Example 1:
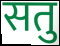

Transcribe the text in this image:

सतु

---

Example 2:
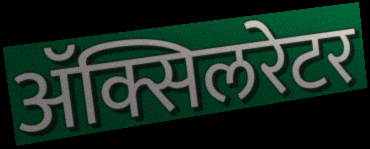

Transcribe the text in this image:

ॲक्सिलरेटर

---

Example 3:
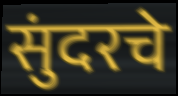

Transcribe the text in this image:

सुंदरचे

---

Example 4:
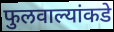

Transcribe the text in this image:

फुलवाल्यांकडे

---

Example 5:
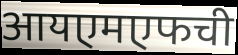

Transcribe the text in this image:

आयएमएफची